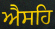
ਐਸਹਿ